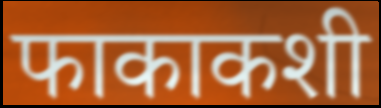
फाकाकशी